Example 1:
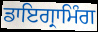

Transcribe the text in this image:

ਡਾਇਗ੍ਰਾਮਿੰਗ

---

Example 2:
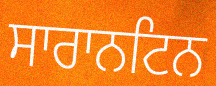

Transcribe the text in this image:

ਸਾਰਾਨਟਿਨ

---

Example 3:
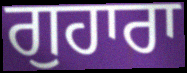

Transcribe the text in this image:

ਗੁਹਾਰਾ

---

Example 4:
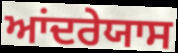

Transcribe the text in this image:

ਆਂਦਰੇਯਾਸ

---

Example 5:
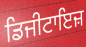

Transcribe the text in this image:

ਡਿਜੀਟਾਇਜ਼